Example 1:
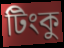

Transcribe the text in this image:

টিংকু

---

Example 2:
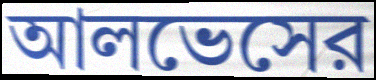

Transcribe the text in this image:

আলভেসের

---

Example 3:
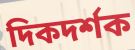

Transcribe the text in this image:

দিকদর্শক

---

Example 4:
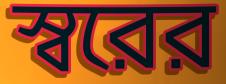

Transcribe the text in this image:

স্বরের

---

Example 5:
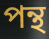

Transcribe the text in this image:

পন্থ